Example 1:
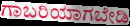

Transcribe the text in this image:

ಗಾಬರಿಯಾಗಬೇಡಿ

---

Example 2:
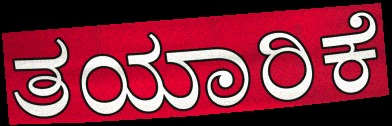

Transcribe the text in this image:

ತಯಾರಿಕೆ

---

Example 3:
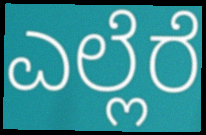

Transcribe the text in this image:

ಎಲ್ಲೆರೆ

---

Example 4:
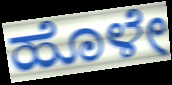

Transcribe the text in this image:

ಹೊಳೇ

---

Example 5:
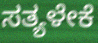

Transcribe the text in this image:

ಸತ್ಯಳೇಕೆ